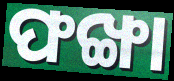
ଫଙ୍ଖା